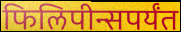
फिलिपीन्सपर्यंत